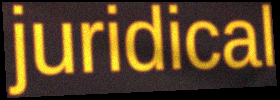
juridical